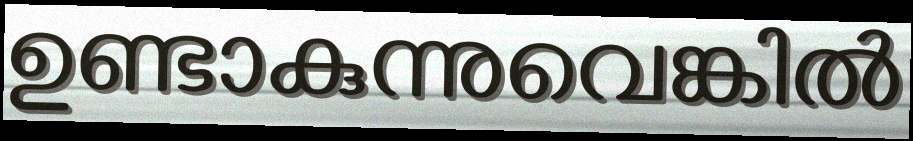
ഉണ്ടാകുന്നുവെങ്കിൽ